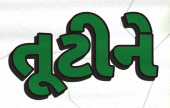
તૂટીને